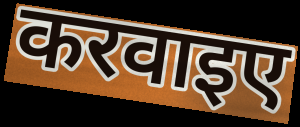
करवाइए